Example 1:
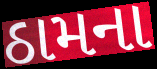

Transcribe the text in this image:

ઠામના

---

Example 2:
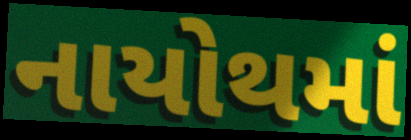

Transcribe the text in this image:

નાયોથમાં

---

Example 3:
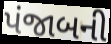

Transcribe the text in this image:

પંજાબની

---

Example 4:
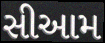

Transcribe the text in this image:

સીઆમ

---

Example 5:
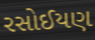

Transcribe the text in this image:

રસોઈયણ